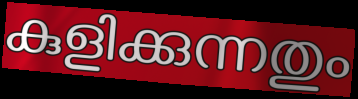
കുളിക്കുന്നതും